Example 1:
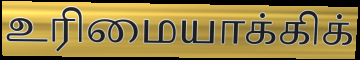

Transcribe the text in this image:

உரிமையாக்கிக்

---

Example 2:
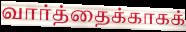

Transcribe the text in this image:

வார்த்தைக்காகக்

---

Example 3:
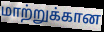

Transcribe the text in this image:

மாற்றுக்கான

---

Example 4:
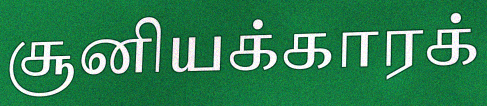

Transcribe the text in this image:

சூனியக்காரக்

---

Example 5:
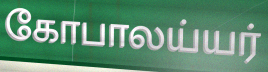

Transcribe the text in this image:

கோபாலய்யர்